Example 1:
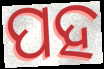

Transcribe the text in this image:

ପହ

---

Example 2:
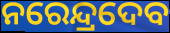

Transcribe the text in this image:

ନରେନ୍ଦ୍ରଦେବ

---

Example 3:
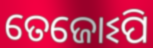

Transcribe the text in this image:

ତେଜୋଽପି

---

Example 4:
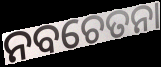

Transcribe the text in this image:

ନବଚେତନା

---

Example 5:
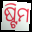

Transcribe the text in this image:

ଷ୍ଟିମ